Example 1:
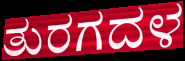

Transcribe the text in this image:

ತುರಗದಳ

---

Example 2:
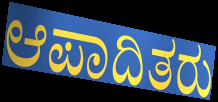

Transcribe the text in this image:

ಆಪಾದಿತರು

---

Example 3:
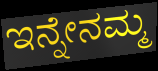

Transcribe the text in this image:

ಇನ್ನೇನಮ್ಮ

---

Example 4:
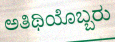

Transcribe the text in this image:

ಅತಿಥಿಯೊಬ್ಬರು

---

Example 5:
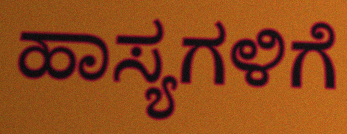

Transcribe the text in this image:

ಹಾಸ್ಯಗಳಿಗೆ